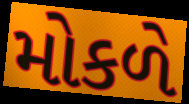
મોકળે